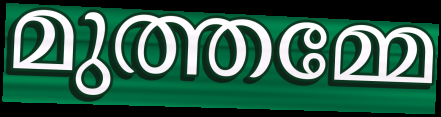
മുത്തമ്മേ